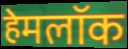
हेमलॉक